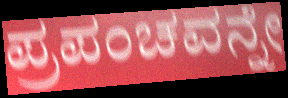
ಪ್ರಪಂಚವನ್ನೇ